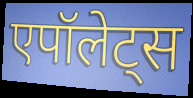
एपॉलेट्स